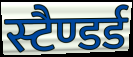
स्‍टैण्‍डर्ड